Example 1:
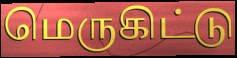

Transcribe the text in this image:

மெருகிட்டு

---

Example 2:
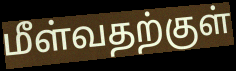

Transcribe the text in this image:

மீள்வதற்குள்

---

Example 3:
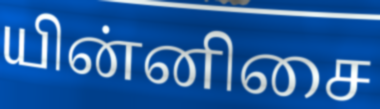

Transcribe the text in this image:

யின்னிசை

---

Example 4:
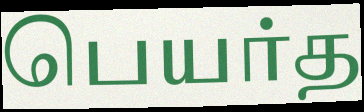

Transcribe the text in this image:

பெயர்த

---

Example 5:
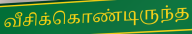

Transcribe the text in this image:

வீசிக்கொண்டிருந்த